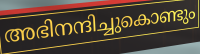
അഭിനന്ദിച്ചുകൊണ്ടും